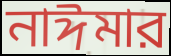
নাঈমার